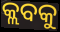
କ୍ଲବକୁ